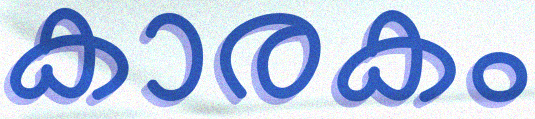
കാരകം